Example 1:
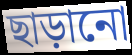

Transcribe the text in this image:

ছাড়ানো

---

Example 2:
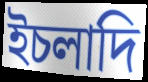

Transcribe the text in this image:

ইচলাদি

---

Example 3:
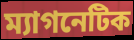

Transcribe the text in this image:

ম্যাগনেটিক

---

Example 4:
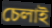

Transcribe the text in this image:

চেলাই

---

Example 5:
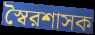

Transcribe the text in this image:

স্বৈরশাসক